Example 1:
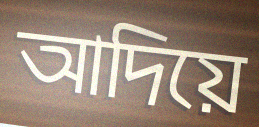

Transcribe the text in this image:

আদিয়ে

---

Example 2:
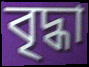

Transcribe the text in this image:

বৃদ্ধা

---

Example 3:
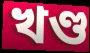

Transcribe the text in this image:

খণ্ড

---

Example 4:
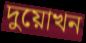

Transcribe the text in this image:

দুয়োখন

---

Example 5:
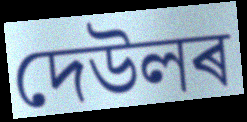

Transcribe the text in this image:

দেউলৰ